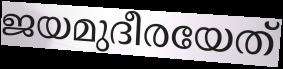
ജയമുദീരയേത്